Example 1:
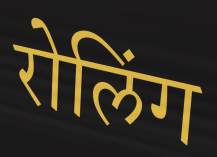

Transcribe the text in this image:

रोलिंग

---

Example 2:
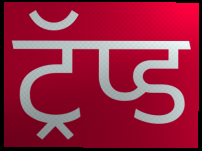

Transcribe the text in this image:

ट्रॅप्ड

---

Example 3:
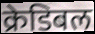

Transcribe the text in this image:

क्रेडिबल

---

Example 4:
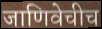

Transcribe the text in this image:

जाणिवेचीच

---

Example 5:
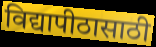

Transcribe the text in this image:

विद्यापीठासाठी